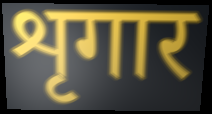
शृगार